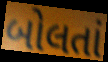
બોલતાં